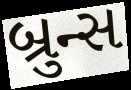
બ્રુન્સ